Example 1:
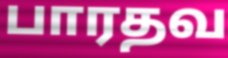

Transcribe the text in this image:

பாரதவ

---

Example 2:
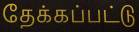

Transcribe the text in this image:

தேக்கப்பட்டு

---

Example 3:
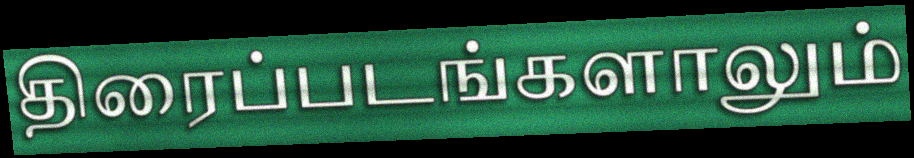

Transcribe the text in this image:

திரைப்படங்களாலும்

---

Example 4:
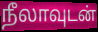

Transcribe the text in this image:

நீலாவுடன்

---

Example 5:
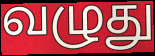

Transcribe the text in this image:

வழுது